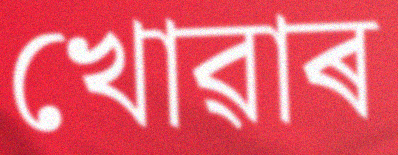
খোৱাৰ